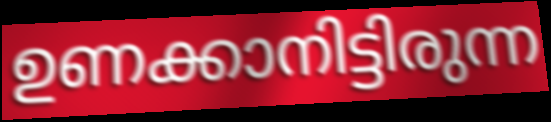
ഉണക്കാനിട്ടിരുന്ന